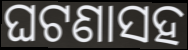
ଘଟଣାସହ